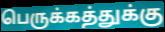
பெருக்கத்துக்கு